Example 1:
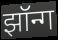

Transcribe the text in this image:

झॉन्ग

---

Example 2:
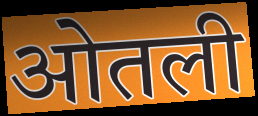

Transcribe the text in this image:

ओतली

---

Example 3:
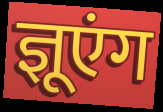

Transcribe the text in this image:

ज्ञूएंग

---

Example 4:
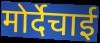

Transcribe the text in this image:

मोर्देचाई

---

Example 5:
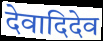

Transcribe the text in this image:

देवादिदेव